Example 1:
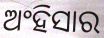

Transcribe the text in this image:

ଅଂହିସାର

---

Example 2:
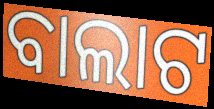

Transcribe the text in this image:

ବାଲାଟ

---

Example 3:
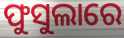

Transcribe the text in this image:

ଫୁସୁଲାରେ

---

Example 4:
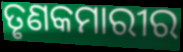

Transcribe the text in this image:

ତୃଣକମାରୀର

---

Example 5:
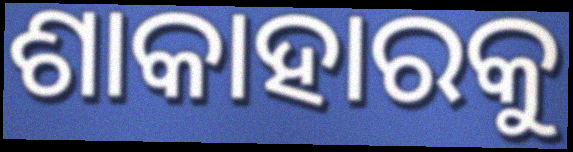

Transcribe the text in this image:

ଶାକାହାରକୁ